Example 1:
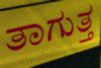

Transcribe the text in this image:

ತಾಗುತ್ತ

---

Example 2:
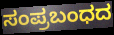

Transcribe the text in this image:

ಸಂಪ್ರಬಂಧದ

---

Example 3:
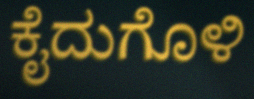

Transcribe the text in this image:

ಕೈದುಗೊಳಿ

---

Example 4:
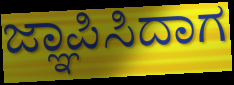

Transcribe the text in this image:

ಜ್ಞಾಪಿಸಿದಾಗ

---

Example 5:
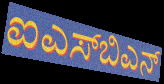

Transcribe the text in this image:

ಐಎಸ್‌ಬಿಎನ್